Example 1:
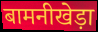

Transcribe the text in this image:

बामनीखेड़ा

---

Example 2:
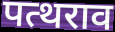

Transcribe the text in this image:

पत्थराव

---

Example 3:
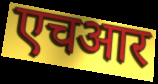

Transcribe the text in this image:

एचआर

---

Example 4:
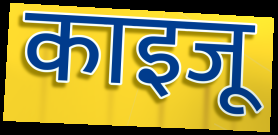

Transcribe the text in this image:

काइजू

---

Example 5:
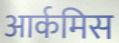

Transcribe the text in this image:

आर्कमिस